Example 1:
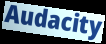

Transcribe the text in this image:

Audacity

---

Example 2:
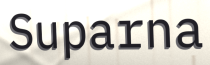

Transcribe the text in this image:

Suparna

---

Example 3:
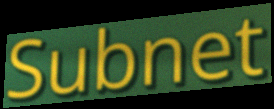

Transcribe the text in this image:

Subnet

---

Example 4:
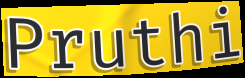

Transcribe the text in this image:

Pruthi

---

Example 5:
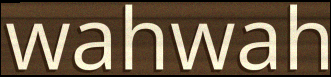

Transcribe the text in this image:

wahwah